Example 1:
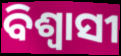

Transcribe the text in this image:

ବିଶ୍ୱାସୀ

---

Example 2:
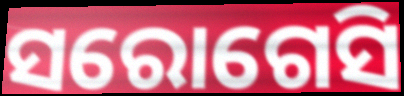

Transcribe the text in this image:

ସରୋଗେସି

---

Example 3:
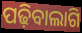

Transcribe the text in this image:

ପଢ଼ିବାଲାଗି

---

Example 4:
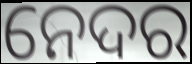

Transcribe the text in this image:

ନେଦର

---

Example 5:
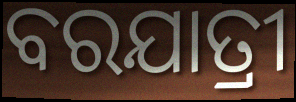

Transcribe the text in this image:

ବରଯାତ୍ରୀ